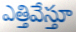
ఎత్తివేస్తూ